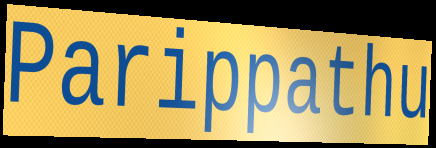
Parippathu